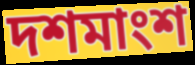
দশমাংশ